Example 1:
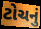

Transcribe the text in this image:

ટોચનું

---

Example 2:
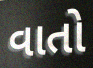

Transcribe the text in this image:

વાતો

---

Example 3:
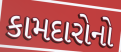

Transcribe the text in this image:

કામદારોનો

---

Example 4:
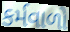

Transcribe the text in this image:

કર્મવાળો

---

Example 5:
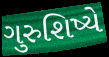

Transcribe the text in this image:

ગુરુશિષ્યે